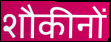
शौकीनों